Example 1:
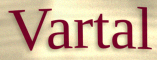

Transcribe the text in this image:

Vartal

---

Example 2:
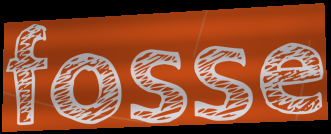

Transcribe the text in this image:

fosse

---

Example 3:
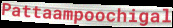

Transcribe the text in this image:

Pattaampoochigal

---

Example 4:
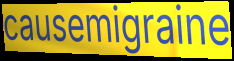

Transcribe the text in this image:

causemigraine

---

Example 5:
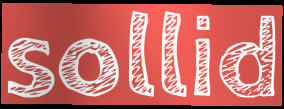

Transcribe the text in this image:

sollid